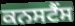
ਕਨਸਟੈਂਸ